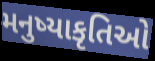
મનુષ્યાકૃતિઓ